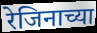
रेजिनाच्या